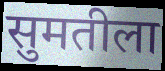
सुमतीला